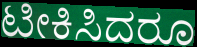
ಟೀಕಿಸಿದರೂ